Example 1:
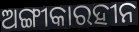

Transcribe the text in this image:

ଅଙ୍ଗୀକାରହୀନ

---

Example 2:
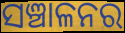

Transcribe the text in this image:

ସଞ୍ଚାଳନର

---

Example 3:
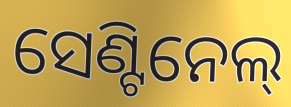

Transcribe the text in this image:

ସେଣ୍ଟିନେଲ୍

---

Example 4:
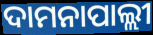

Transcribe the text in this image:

ଦାମନାପାଲ୍ଲୀ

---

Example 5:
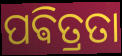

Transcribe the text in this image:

ପଵିତ୍ରତା